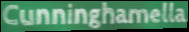
Cunninghamella